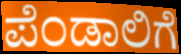
ಪೆಂಡಾಲಿಗೆ